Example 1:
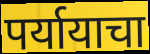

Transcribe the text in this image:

पर्यायाचा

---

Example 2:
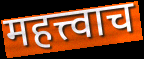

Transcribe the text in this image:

महत्त्वाच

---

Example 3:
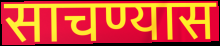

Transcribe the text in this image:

साचण्यास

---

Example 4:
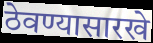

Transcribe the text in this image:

ठेवण्यासारखे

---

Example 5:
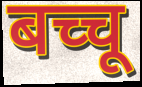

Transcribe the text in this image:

बच्चू